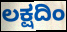
ಲಕ್ಷದಿಂ